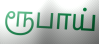
ரூபாய்